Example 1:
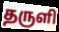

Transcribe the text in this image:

தருளி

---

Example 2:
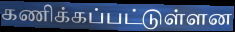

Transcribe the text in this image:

கணிக்கப்பட்டுள்ளன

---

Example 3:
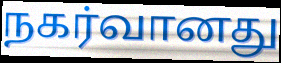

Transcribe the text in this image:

நகர்வானது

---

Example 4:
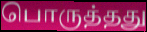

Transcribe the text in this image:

பொருத்தது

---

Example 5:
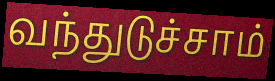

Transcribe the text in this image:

வந்துடுச்சாம்